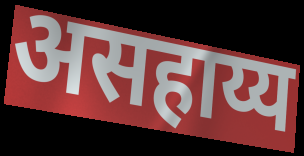
असहाय्य